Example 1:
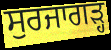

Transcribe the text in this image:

ਸੁਰਜਾਗੜ੍ਹ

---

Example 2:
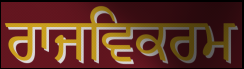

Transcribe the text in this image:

ਰਾਜਵਿਕਰਮ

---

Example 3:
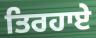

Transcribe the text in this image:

ਤਿਰਹਾਏ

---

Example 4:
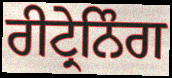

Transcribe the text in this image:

ਰੀਟ੍ਰੇਨਿੰਗ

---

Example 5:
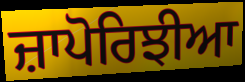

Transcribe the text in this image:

ਜ਼ਾਪੋਰਿਝੀਆ